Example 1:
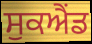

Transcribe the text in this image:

ਸੁਕਐਂਡ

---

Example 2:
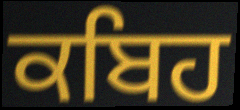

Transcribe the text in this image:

ਕਬਿਹ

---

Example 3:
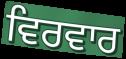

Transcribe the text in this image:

ਵਿਰਵਾਰ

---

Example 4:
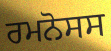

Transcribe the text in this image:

ਰਮਨੋਸਸ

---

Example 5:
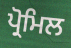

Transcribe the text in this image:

ਪ੍ਰੋਮਿਲ